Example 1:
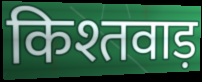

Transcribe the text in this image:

किश्तवाड़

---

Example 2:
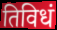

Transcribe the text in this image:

तिविधं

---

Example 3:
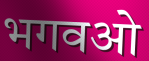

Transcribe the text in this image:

भगवओ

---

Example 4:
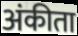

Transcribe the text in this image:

अंकीता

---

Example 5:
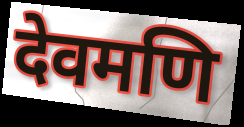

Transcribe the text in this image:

देवमणि